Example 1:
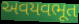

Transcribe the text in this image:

અવયવભૂત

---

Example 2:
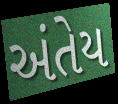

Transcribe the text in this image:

અંતેય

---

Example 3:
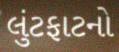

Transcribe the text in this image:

લુંટફાટનો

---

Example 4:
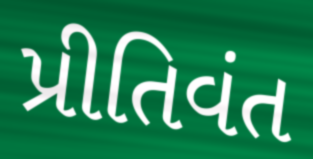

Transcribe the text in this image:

પ્રીતિવંત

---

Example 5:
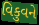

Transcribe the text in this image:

વિકુવને